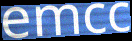
emcc